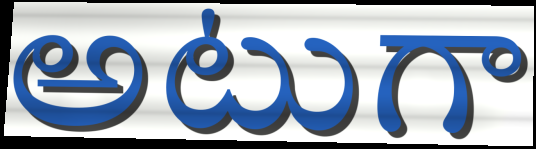
అటుగా